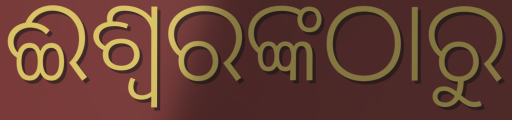
ଈଶ୍ଵରଙ୍କଠାରୁ